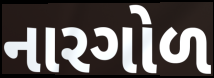
નારગોળ